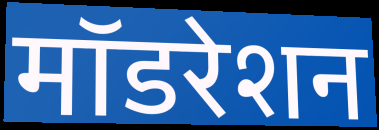
मॉडरेशन